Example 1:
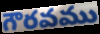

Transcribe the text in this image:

గౌరవము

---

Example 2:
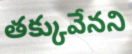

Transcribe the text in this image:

తక్కువేనని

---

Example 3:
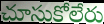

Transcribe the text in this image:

చూసుకోలేరు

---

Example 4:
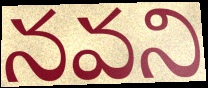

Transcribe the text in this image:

నవని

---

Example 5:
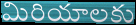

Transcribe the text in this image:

మిరియాలకు